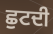
ਛੁਟਦੀ